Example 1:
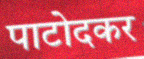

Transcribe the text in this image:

पाटोदकर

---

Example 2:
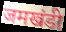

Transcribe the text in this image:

जमखंडी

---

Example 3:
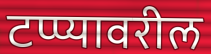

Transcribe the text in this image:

टप्प्यावरील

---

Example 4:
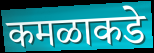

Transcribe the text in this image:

कमळाकडे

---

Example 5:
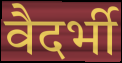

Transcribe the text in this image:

वैदर्भी